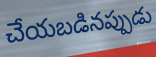
చేయబడినప్పుడు